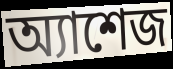
অ্যাশেজ